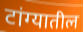
टांग्यातील